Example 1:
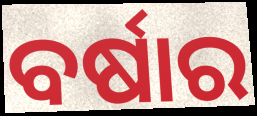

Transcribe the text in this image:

ବର୍ଷାର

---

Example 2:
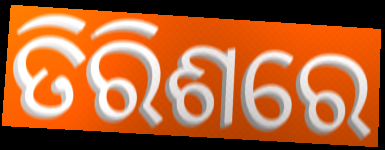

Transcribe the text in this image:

ତିରିଶରେ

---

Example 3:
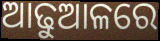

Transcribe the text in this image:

ଆଢୁଆଳରେ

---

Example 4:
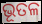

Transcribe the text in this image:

ଭୂତଳ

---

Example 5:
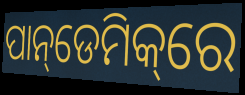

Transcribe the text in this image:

ପାନ୍‌ଡେମିକ୍‌ରେ